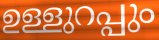
ഉള്ളുറപ്പും